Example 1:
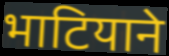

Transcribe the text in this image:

भाटियाने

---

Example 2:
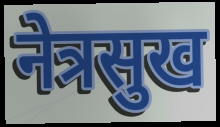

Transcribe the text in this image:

नेत्रसुख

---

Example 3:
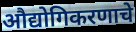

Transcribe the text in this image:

औद्योगिकरणाचे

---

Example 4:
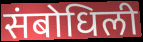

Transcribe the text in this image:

संबोधिली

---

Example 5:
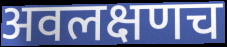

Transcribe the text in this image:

अवलक्षणच